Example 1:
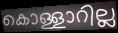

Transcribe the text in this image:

കൊള്ളാറില്ല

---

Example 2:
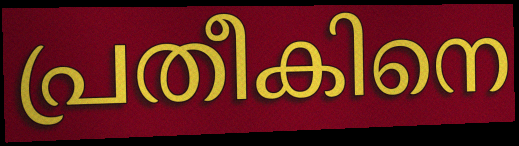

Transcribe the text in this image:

പ്രതീകിനെ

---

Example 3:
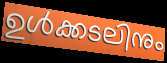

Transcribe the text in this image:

ഉൾക്കടലിനും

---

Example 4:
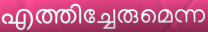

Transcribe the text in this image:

എത്തിച്ചേരുമെന്ന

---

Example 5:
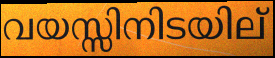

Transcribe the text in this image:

വയസ്സിനിടയില്